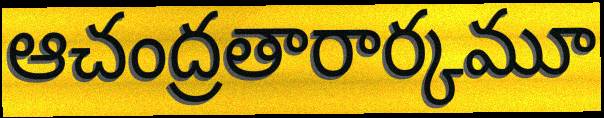
ఆచంద్రతారార్కమూ